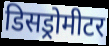
डिसड्रोमीटर